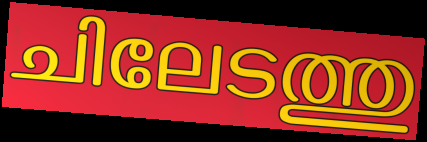
ചിലേടത്തു